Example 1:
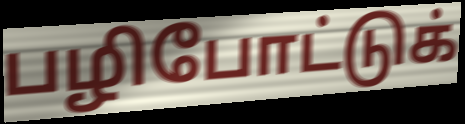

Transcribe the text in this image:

பழிபோட்டுக்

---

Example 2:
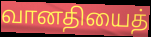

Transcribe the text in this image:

வானதியைத்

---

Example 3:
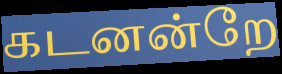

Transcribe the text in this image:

கடனன்றே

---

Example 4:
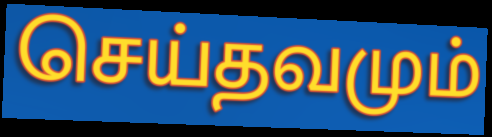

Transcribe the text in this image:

செய்தவமும்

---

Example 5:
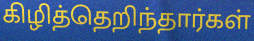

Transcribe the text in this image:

கிழித்தெறிந்தார்கள்